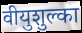
वीयुशुल्का